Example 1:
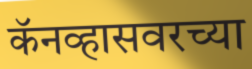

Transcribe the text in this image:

कॅनव्हासवरच्या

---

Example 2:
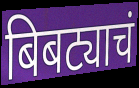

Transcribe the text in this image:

बिबट्याचं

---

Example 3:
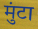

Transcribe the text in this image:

मुंटा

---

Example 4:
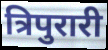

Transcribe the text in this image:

त्रिपुरारी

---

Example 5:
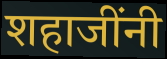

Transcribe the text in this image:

शहाजींनी